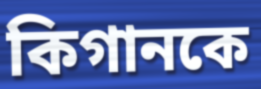
কিগানকে